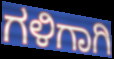
ಗಳಿಗಾಗಿ